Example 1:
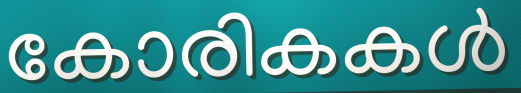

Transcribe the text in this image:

കോരികകൾ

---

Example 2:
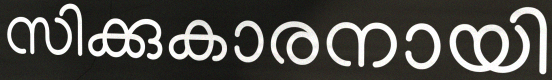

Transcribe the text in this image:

സിക്കുകാരനായി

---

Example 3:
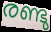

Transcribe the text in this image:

രണ്ടു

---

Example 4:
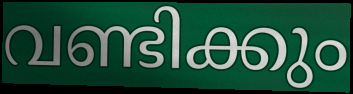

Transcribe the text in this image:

വണ്ടിക്കും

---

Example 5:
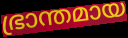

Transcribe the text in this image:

ഭ്രാന്തമായ